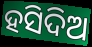
ହସିଦିଅ